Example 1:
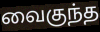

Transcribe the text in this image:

வைகுந்த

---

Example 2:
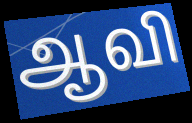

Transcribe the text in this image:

ஆவி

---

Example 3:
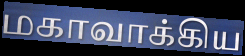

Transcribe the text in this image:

மகாவாக்கிய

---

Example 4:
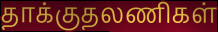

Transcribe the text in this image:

தாக்குதலணிகள்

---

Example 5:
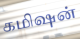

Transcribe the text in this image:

கமிஷன்